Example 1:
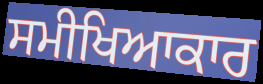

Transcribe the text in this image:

ਸਮੀਖਿਆਕਾਰ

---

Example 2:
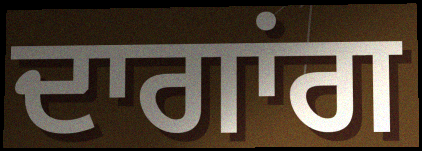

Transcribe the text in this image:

ਦਾਗਾਂਗ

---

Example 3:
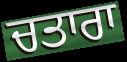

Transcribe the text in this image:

ਚਤਾਰਾ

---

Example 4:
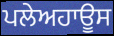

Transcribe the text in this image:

ਪਲੇਅਹਾਊਸ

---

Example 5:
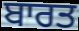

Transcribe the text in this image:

ਬਾਰਤ